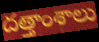
దత్తాంశాలు